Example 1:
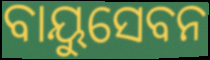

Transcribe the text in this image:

ବାୟୁସେବନ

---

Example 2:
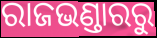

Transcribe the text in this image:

ରାଜଭଣ୍ଡାରରୁ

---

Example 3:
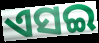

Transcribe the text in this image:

ଏସଇ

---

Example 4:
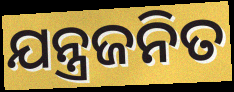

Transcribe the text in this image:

ଯନ୍ତ୍ରଜନିତ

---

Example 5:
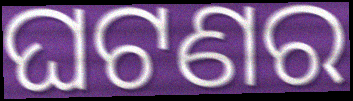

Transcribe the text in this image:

ଘଟଣର